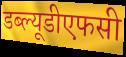
डब्ल्यूडीएफसी